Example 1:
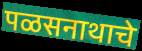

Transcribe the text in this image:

पळसनाथाचे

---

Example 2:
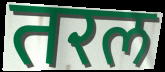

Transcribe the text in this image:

तरल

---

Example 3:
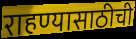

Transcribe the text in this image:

राहण्यासाठीची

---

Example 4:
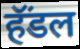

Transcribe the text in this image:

हॅंडल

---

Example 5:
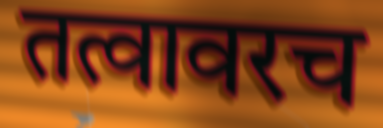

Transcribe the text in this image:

तत्वावरच